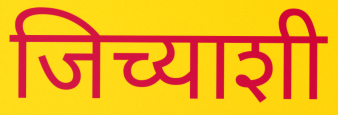
जिच्याशी